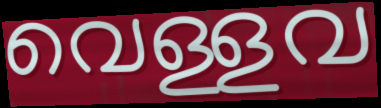
വെള്ളവ